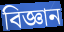
বিজ্ঞান